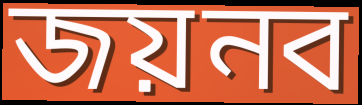
জয়নব